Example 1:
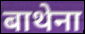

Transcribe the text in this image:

बाथेना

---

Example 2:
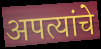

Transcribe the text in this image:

अपत्यांचे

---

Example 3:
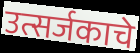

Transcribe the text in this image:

उत्सर्जकाचे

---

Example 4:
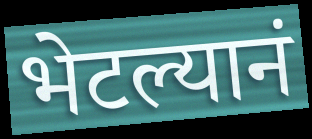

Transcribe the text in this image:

भेटल्यानं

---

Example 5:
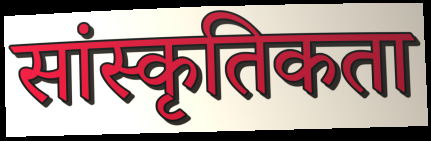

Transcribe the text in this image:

सांस्कृतिकता